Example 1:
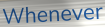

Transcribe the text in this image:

Whenever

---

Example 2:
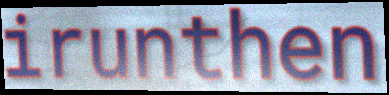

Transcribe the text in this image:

irunthen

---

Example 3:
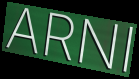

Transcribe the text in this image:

ARNI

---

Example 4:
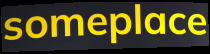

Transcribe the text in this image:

someplace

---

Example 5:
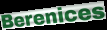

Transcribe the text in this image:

Berenices